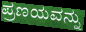
ಪ್ರಣಯವನ್ನು